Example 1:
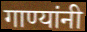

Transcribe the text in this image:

गाण्यांनी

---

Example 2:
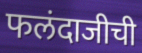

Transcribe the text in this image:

फलंदाजीची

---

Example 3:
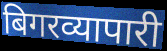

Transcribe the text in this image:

बिगरव्यापारी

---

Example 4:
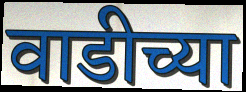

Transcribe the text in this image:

वाडीच्या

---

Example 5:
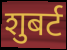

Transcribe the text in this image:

शुबर्ट